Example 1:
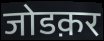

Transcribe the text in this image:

जोडक़र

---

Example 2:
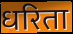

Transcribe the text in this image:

धरिता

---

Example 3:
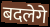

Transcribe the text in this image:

बदलेगे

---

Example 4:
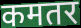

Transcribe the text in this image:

कमतर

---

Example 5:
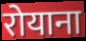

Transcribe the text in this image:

रोयाना